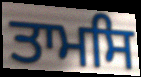
ਤਾਮਸਿ